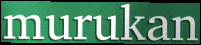
murukan